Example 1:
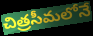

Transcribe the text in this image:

చిత్రసీమలోనే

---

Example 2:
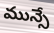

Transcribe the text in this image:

మున్సే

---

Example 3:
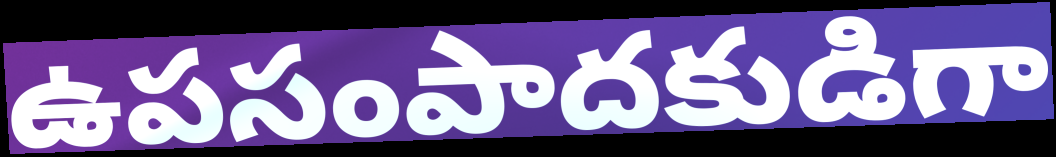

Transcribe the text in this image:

ఉపసంపాదకుడిగా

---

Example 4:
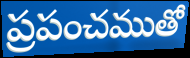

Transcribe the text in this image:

ప్రపంచముతో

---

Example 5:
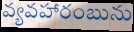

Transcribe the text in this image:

వ్యవహారంబును